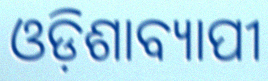
ଓଡ଼ିଶାବ୍ୟାପୀ